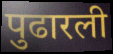
पुढारली